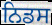
ਨਿਡਸ